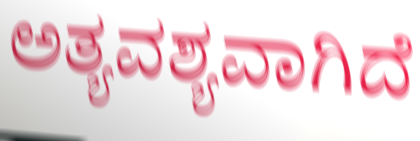
ಅತ್ಯವಶ್ಯವಾಗಿದೆ